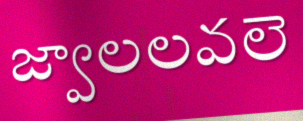
జ్వాలలవలె